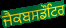
ਜੈਕਬਸਡੌਟਿਰ